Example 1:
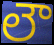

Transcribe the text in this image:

లౌ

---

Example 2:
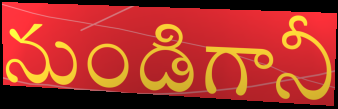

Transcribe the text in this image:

నుండిగానీ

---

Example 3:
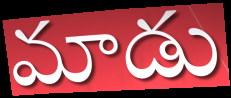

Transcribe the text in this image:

మాడు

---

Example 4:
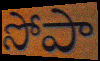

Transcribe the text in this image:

సోపా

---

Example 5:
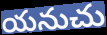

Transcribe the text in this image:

యనుచు